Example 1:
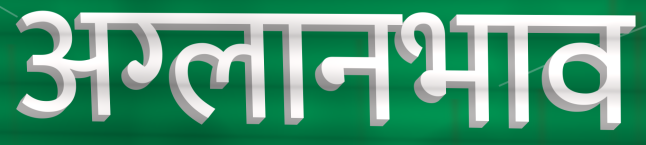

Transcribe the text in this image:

अग्लानभाव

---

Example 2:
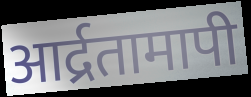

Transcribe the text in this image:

आर्द्रतामापी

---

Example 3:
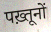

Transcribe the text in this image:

पख़्तूनों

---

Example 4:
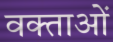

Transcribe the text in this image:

वक्ताओें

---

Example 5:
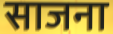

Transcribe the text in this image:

साजना